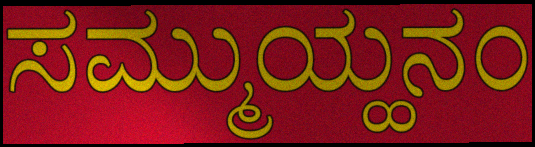
ಸಮ್ಮುಯ್ಹನಂ